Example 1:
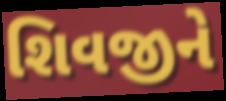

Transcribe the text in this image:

શિવજીને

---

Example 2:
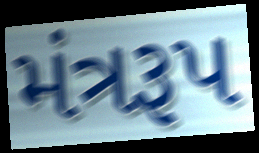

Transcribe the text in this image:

મંત્રરૂપ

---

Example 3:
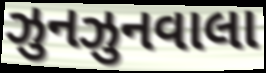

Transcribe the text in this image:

ઝુનઝુનવાલા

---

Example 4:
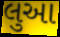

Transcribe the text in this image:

લુઆ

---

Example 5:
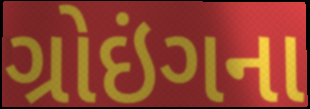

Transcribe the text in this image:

ગ્રોઇંગના